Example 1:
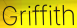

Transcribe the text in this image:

Griffith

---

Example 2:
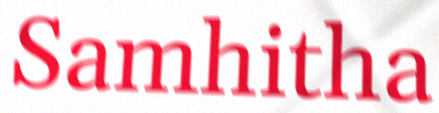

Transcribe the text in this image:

Samhitha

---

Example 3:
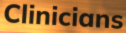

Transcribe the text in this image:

Clinicians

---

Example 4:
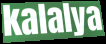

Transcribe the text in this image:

kalalya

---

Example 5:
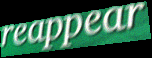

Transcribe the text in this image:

reappear